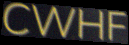
CWHF